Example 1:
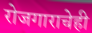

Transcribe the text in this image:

रोजगाराचेही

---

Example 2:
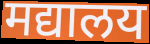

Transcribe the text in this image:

मद्यालय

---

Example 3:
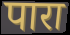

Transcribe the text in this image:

पारा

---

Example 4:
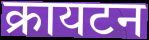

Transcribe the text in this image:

क्रायटन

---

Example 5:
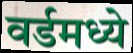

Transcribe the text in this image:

वर्डमध्ये